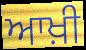
ਆਖ਼ੀ